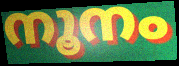
നൂനം